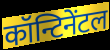
कॉन्टिनेंटल